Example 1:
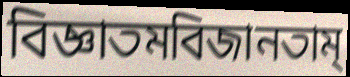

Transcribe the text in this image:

বিজ্ঞাতমবিজানতাম্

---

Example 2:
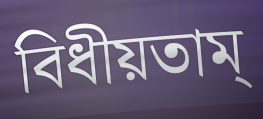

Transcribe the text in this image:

বিধীয়তাম্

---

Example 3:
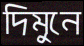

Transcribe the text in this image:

দিমুনে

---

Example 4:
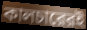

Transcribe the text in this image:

কালচারেরই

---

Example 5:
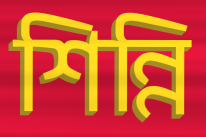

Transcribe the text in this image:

শিন্নি